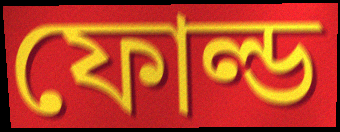
ফোল্ড